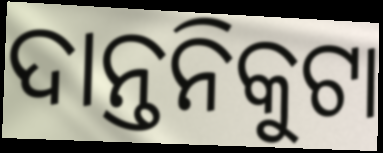
ଦାନ୍ତନିକୁଟା